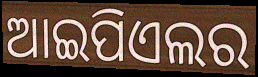
ଆଇପିଏଲର